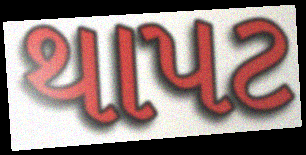
થાપટ